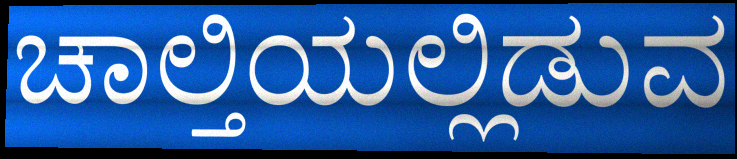
ಚಾಲ್ತಿಯಲ್ಲಿಡುವ